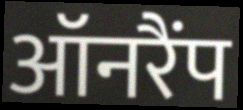
ऑनरैंप